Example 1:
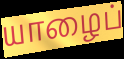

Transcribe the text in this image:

யாழைப்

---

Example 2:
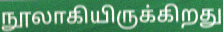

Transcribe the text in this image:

நூலாகியிருக்கிறது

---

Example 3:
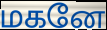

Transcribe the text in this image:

மகனே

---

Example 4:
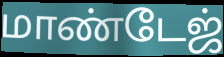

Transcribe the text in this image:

மாண்டேஜ்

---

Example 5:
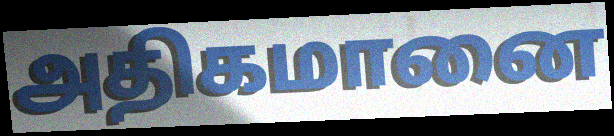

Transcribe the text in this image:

அதிகமானை